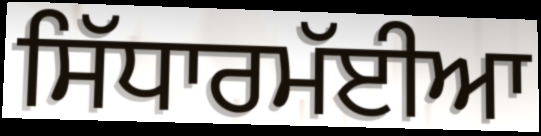
ਸਿੱਧਾਰਮੱਈਆ